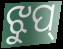
ଝୁପ୍